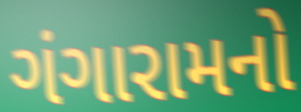
ગંગારામનો